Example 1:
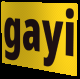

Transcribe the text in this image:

gayi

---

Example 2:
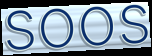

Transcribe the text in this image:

soos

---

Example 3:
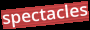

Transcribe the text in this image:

spectacles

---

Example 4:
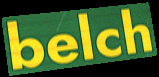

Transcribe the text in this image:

belch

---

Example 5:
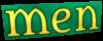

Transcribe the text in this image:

men